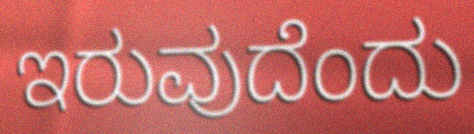
ಇರುವುದೆಂದು